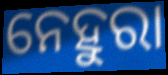
ନେହୁରା